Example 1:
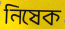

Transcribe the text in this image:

নিষেক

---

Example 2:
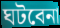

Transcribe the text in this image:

ঘটবেনা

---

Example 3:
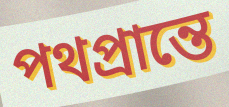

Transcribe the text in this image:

পথপ্রান্তে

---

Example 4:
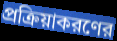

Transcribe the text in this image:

প্রক্রিয়াকরণের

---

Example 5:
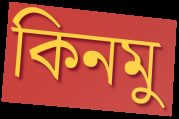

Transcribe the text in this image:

কিনমু